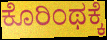
ಕೊರಿಂಥಕ್ಕೆ